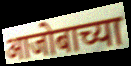
आजोबाच्या